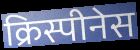
क्रिस्पीनेस